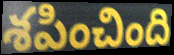
శపించింది